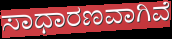
ಸಾಧಾರಣವಾಗಿವೆ